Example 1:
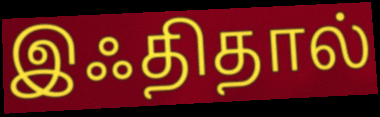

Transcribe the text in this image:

இஃதிதால்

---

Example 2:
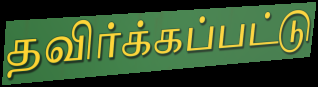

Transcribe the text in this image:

தவிர்க்கப்பட்டு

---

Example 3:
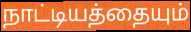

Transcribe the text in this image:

நாட்டியத்தையும்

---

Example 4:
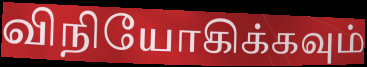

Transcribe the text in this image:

விநியோகிக்கவும்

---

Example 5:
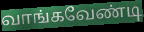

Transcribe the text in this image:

வாங்கவேண்டி